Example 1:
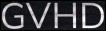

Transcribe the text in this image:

GVHD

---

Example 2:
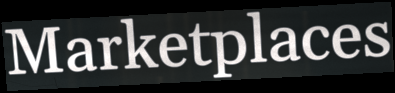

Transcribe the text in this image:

Marketplaces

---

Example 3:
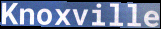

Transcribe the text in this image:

Knoxville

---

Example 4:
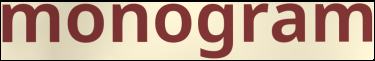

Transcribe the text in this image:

monogram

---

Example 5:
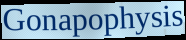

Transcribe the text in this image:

Gonapophysis